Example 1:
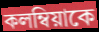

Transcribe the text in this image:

কলম্বিয়াকে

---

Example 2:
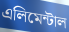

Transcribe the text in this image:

এলিমেন্টাল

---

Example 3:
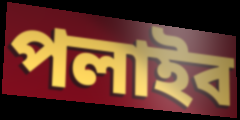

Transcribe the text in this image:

পলাইব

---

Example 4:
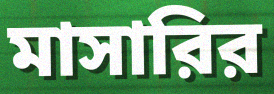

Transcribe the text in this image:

মাসারির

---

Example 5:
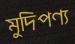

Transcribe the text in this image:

মুদিপণ্য